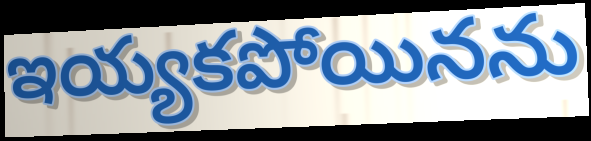
ఇయ్యకపోయినను